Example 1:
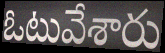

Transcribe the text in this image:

ఓటువేశారు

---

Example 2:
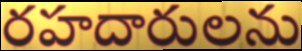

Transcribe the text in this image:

రహదారులను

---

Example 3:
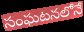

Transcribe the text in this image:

సంఘటనలోనే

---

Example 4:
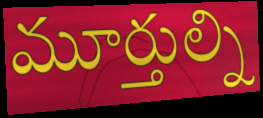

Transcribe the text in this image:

మూర్తుల్ని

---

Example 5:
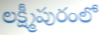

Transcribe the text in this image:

లక్ష్మీపురంలో